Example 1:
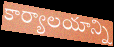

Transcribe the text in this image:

కార్యాలయాన్ని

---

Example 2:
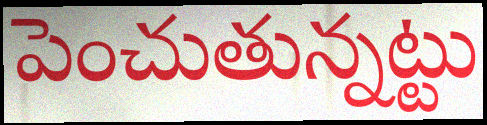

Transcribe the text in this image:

పెంచుతున్నట్టు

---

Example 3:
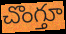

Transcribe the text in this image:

చొంగ్తూ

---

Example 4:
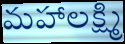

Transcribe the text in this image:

మహాలక్ష్మి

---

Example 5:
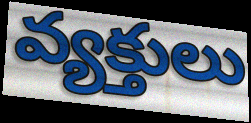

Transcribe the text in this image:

వ్యక్తులు